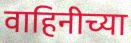
वाहिनीच्या